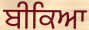
ਬੀਕਿਆ